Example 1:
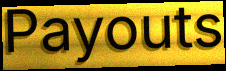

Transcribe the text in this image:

Payouts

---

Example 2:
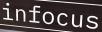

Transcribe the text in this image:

infocus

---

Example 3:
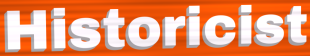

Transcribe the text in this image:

Historicist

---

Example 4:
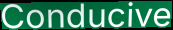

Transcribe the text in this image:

Conducive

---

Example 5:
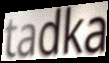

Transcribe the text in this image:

tadka